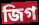
জিগ